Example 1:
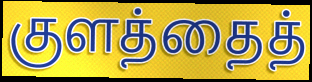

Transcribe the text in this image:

குளத்தைத்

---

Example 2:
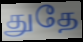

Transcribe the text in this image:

துதே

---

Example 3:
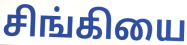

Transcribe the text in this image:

சிங்கியை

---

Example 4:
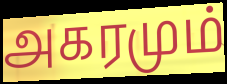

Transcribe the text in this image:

அகரமும்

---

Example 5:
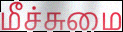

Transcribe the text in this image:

மீச்சுமை